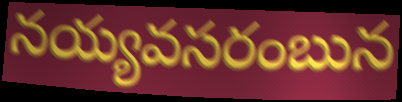
నయ్యవసరంబున